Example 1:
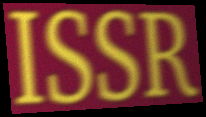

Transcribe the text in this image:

ISSR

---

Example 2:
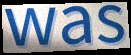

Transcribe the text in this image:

was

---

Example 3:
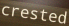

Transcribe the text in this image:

crested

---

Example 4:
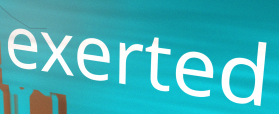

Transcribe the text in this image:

exerted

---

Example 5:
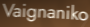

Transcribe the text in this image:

Vaignaniko